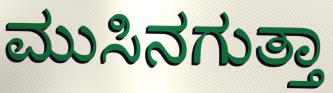
ಮುಸಿನಗುತ್ತಾ